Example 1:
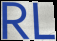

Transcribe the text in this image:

RL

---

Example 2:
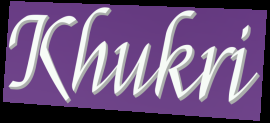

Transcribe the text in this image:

Khukri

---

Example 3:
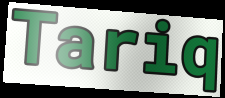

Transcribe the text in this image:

Tariq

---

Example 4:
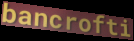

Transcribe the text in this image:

bancrofti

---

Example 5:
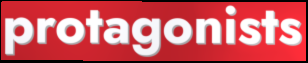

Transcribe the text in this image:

protagonists